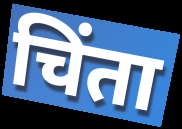
चिंता